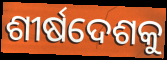
ଶୀର୍ଷଦେଶକୁ